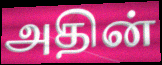
அதின்